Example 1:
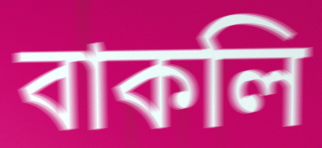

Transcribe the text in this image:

বাকলি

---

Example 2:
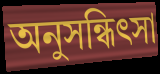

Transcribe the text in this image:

অনুসন্ধিৎসা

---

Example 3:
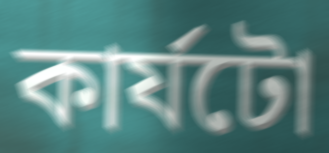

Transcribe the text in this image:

কাৰ্যটো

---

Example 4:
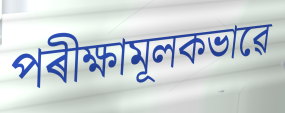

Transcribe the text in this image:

পৰীক্ষামূলকভাৱে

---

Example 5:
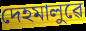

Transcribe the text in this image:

দেহমালুৱে